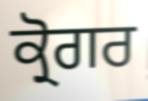
ਕ੍ਰੋਗਰ